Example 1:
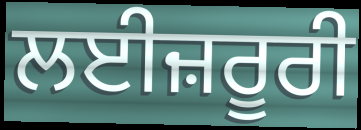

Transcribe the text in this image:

ਲਈਜ਼ਰੂਰੀ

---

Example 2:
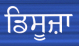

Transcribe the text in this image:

ਡਿਸੂਜ਼ਾ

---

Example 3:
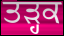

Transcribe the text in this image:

ਤੜ੍ਹਕ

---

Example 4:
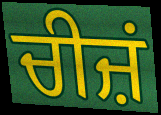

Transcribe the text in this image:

ਚੀਜ਼ਂ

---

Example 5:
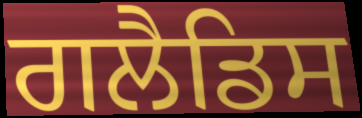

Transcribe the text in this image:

ਗਲੈਡਿਸ